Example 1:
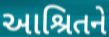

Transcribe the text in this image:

આશ્રિતને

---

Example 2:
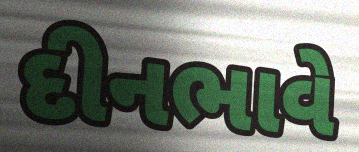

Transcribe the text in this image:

દીનભાવે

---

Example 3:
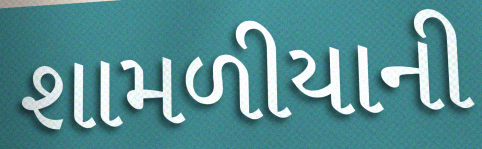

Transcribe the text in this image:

શામળીયાની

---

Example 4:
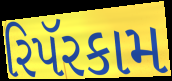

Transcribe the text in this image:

રિપૅરકામ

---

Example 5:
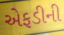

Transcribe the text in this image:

એફડીની